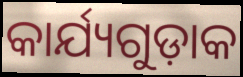
କାର୍ଯ୍ୟଗୁଡ଼ାକ